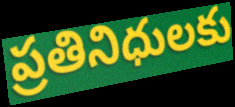
ప్రతినిధులకు